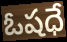
ఓషధే